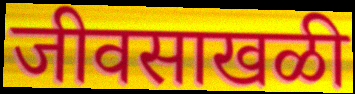
जीवसाखळी